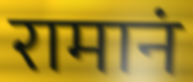
रामानं